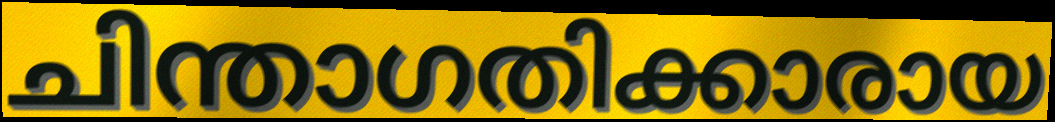
ചിന്താഗതിക്കാരായ